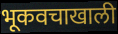
भूकवचाखाली